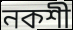
নকশী